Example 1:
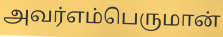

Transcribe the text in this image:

அவர்எம்பெருமான்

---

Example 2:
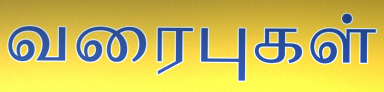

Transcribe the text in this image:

வரைபுகள்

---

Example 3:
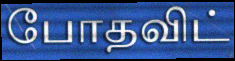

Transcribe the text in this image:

போதவிட்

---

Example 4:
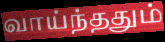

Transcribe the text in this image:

வாய்ந்ததும்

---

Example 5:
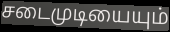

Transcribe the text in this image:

சடைமுடியையும்